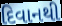
દિવાનથી